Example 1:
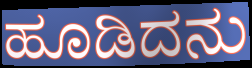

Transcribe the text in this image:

ಹೂಡಿದನು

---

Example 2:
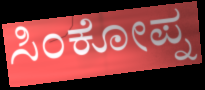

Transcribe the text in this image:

ಸಿಂಕೋಪ್ನ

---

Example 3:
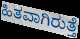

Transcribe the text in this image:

ಹಿತವಾಗಿರುತ್ತೆ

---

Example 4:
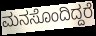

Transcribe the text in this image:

ಮನಸೊಂದಿದ್ದರೆ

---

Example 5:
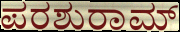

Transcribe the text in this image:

ಪರಶುರಾಮ್